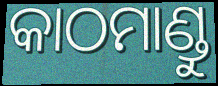
କାଠମାଣ୍ଡୁ